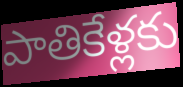
పాతికేళ్లకు